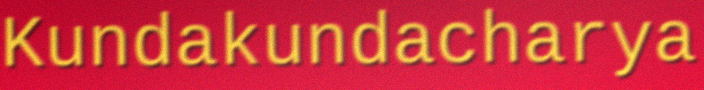
Kundakundacharya